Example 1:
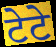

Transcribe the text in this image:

टेटे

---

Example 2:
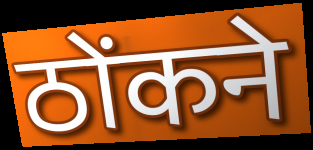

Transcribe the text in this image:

ठोंकने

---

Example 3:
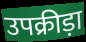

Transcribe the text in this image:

उपक्रीड़ा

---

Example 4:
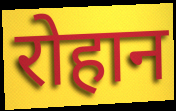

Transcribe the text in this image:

रोहान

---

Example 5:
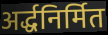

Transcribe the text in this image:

अर्द्धनिर्मित